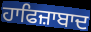
ਹਾਫਿਜ਼ਾਬਾਦ